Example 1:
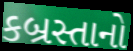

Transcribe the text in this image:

કબ્રસ્તાનો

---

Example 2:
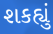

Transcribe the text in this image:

શકહ્યું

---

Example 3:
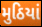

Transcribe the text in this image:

મુઠિયાં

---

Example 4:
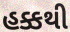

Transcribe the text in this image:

હક્કથી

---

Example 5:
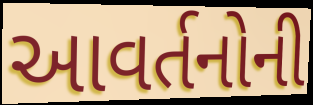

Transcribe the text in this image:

આવર્તનોની